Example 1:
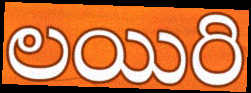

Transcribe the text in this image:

లయిరి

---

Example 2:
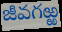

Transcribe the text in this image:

జీవగఱ్ఱ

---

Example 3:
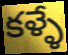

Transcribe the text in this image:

కళ్ళే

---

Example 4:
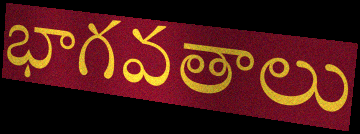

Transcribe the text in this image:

భాగవతాలు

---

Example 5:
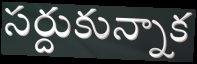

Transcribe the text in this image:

సర్దుకున్నాక